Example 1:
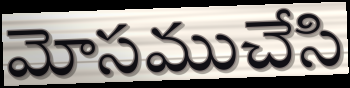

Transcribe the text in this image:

మోసముచేసి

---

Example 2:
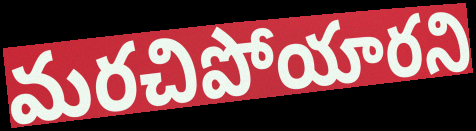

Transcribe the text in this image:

మరచిపోయారని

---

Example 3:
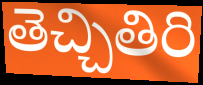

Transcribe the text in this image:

తెచ్చితిరి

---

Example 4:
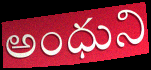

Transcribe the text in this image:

అంధుని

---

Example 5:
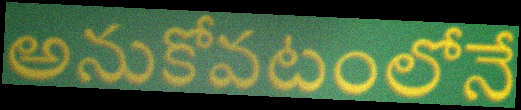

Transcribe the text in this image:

అనుకోవటంలోనే